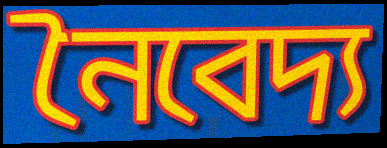
নৈবেদ্য